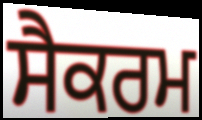
ਸੈਕਰਮ